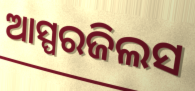
ଆସ୍ପରଜିଲସ